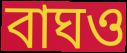
বাঘও